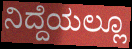
ನಿದ್ದೆಯಲ್ಲೂ